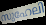
സുഹേലി